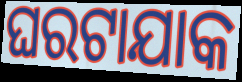
ଘରଟାଯାକ